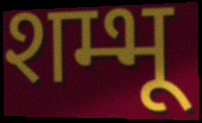
शम्भू